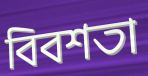
বিবশতা